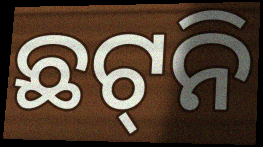
ଛଟ୍‌ନି